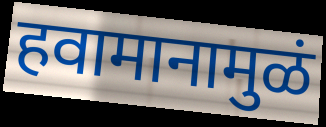
हवामानामुळं